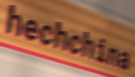
hechchina